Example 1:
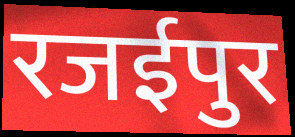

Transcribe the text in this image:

रजईपुर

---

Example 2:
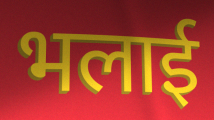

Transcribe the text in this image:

भलाई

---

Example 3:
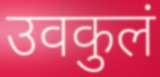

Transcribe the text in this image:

उवकुलं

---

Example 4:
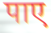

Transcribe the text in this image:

पाए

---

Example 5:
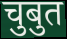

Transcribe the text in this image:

चुबुत